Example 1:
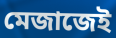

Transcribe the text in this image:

মেজাজেই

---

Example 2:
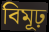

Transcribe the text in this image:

বিমূঢ়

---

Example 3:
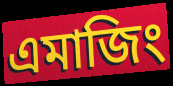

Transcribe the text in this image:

এমাজিং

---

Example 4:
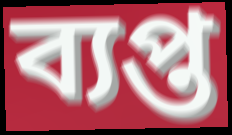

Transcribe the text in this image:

ব্যপ্ত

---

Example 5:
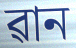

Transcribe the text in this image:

ৱান